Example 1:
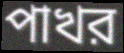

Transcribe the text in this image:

পাখর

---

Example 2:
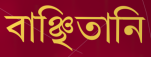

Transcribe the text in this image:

বাঞ্ছিতানি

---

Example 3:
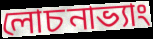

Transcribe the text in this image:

লোচনাভ্যাং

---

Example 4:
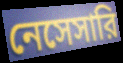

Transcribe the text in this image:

নেসেসারি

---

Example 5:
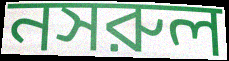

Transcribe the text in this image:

নসরুল